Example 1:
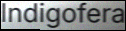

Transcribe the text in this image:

Indigofera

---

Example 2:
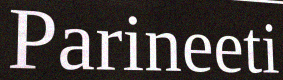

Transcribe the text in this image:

Parineeti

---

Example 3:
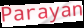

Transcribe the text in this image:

Parayan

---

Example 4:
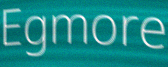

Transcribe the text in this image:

Egmore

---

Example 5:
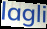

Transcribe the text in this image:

lagli